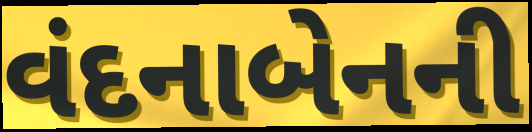
વંદનાબેનની